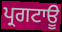
ਪ੍ਰਗਟਾਊ